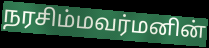
நரசிம்மவர்மனின்